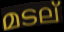
മടല്